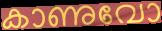
കാണുവോ